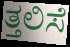
ತ್ತಲಿಸೆ